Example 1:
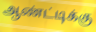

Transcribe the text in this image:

ஆண்ட்டிக்கு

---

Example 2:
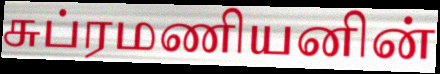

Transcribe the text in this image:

சுப்ரமணியனின்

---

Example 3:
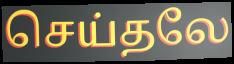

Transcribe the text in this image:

செய்தலே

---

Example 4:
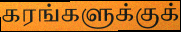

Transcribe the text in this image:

கரங்களுக்குக்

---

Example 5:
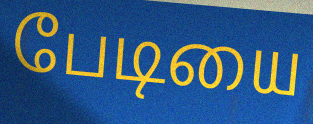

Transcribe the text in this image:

பேடியை